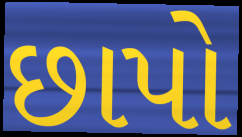
છાપો